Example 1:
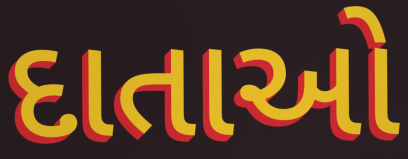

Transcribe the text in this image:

દાતાઓ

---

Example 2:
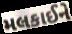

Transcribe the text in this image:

મલકાઈને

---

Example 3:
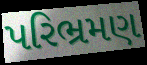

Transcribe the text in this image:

પરિભ્રમણ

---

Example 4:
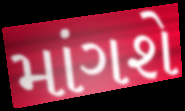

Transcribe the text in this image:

માંગશે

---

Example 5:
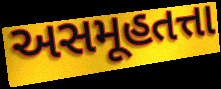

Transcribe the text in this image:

અસમૂહતત્તા